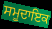
ਸਮੂਦਾਇਕ